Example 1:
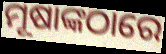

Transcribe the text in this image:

ମୂଷାଙ୍କଠାରେ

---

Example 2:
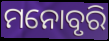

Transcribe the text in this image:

ମନୋବୃରି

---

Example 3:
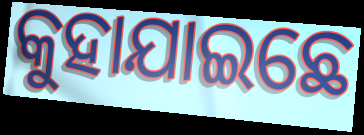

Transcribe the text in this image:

କୁହାଯାଇଛେ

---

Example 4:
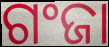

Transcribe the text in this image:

ଗଂଜା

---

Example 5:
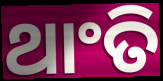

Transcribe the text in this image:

ଥାଂତି